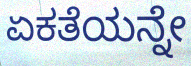
ಏಕತೆಯನ್ನೇ